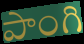
పాంగి